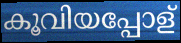
കൂവിയപ്പോള്